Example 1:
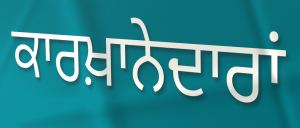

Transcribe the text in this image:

ਕਾਰਖ਼ਾਨੇਦਾਰਾਂ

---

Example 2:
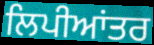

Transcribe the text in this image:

ਲਿਪੀਆਂਤਰ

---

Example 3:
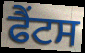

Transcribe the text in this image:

ਫੈਂਟਸ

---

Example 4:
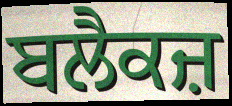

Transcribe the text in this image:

ਬਲੈਕਜ਼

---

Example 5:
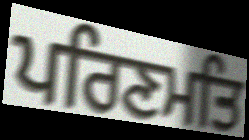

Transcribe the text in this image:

ਪਰਿਣਮਤਿ